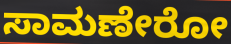
ಸಾಮಣೇರೋ